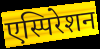
एस्पिरेशन